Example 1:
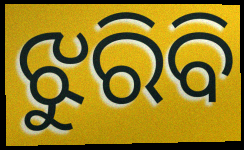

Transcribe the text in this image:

ଝୁରିବି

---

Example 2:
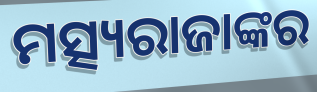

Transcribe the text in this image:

ମତ୍ସ୍ୟରାଜାଙ୍କର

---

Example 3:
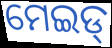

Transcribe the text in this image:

ମେଇଡ୍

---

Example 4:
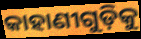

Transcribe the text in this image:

କାହାଣୀଗୁଡ଼ିକୁ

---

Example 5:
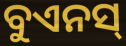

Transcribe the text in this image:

ବୁଏନସ୍